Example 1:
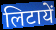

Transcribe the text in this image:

लिटायें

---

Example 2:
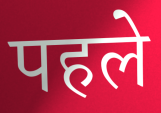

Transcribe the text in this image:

पहले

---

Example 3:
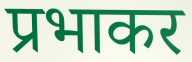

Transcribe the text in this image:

प्रभाकर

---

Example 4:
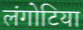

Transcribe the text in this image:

लंगोटिया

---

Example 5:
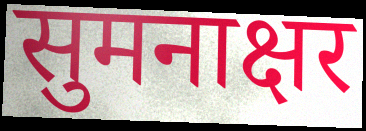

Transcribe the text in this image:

सुमनाक्षर